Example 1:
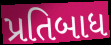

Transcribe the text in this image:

પ્રતિબાધ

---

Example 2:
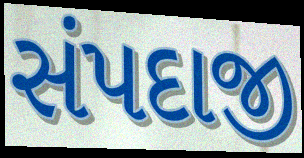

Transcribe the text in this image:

સંપદાજી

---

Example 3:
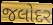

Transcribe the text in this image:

જલોદર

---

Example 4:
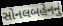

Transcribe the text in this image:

સોનલબહેનનું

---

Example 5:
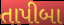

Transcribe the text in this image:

તાપીબા